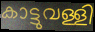
കാട്ടുവള്ളി